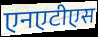
एनएटीएस